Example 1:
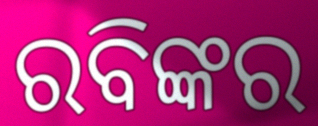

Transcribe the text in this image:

ରବିଙ୍କର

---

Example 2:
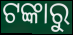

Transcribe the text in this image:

ଟଙ୍କାରୁ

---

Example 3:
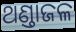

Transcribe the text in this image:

ଥଣ୍ଡାଜଳ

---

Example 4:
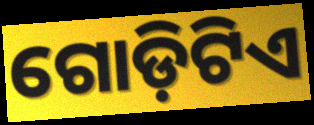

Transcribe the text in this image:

ଗୋଡ଼ିଟିଏ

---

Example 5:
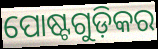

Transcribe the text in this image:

ପୋଷ୍ଟଗୁଡ଼ିକର